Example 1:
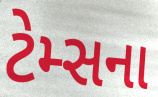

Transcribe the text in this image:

ટેમ્સના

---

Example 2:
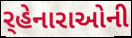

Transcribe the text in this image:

ર્‌હેનારાઓની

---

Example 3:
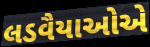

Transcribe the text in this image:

લડવૈયાઓએ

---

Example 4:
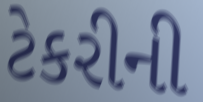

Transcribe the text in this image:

ટેકરીની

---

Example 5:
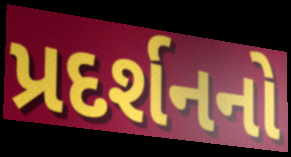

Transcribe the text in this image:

પ્રદર્શનનો